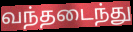
வந்தடைந்து